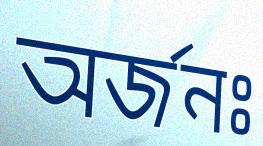
অর্জনঃ